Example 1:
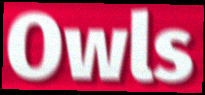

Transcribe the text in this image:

Owls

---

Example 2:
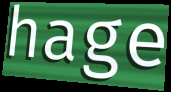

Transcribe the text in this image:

hage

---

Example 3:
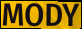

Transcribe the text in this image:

MODY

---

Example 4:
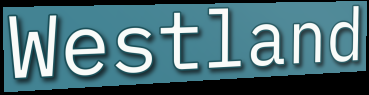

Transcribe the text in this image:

Westland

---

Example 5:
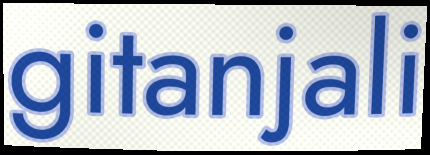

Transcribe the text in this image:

gitanjali